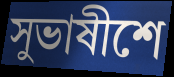
সুভাষীশে